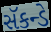
સૅકન્ડે